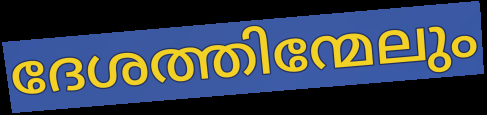
ദേശത്തിന്മേലും